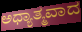
ಅಧ್ಯಾತ್ಮವಾದ